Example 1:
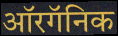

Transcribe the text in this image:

ऑरगॅनिक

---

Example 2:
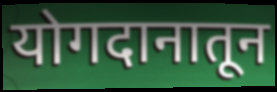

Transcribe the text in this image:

योगदानातून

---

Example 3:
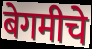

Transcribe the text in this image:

बेगमीचे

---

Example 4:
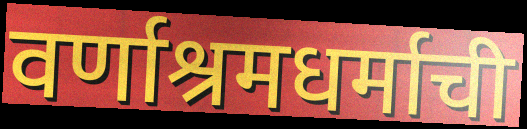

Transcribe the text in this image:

वर्णाश्रमधर्माची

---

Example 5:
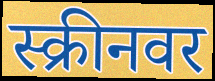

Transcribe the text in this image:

स्क्रीनवर